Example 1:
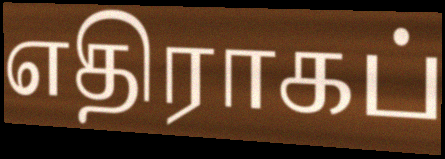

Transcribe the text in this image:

எதிராகப்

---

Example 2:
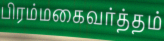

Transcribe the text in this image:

பிரம்மகைவர்த்தம்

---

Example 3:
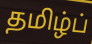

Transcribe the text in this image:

தமிழ்ப்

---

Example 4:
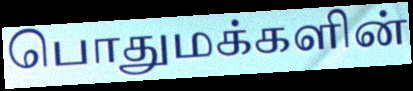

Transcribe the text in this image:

பொதுமக்களின்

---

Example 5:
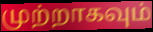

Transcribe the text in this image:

முற்றாகவும்